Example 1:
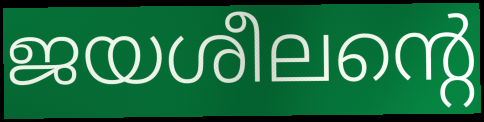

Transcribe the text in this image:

ജയശീലന്റെ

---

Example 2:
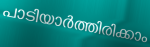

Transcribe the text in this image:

പാടിയാർത്തിരിക്കാം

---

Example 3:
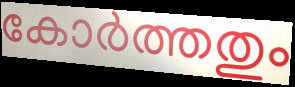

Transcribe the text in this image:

കോർത്തതും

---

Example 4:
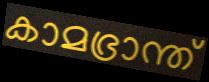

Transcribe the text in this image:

കാമഭ്രാന്ത്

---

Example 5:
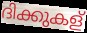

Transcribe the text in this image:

ദിക്കുകള്